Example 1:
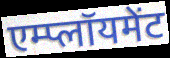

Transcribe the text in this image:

एम्प्लॉयमेंट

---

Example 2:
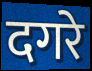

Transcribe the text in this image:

दगरे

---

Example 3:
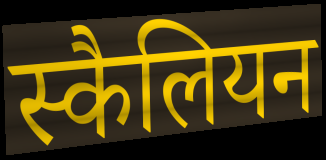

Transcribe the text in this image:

स्कैलियन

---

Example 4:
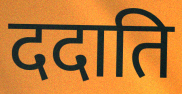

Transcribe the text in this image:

ददाति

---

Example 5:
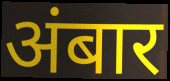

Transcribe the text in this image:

अंबार